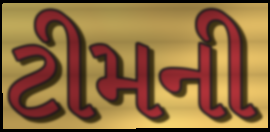
ટીમની